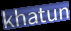
khatun